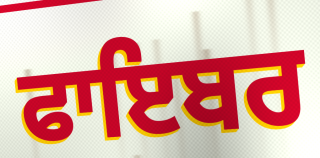
ਫਾਇਬਰ